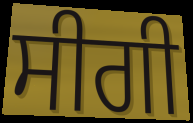
ਸੀਗੀ